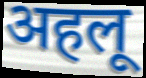
अहलू